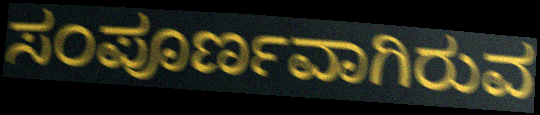
ಸಂಪೂರ್ಣವಾಗಿರುವ